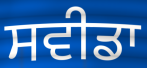
ਸਵੀਡਾ